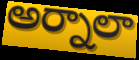
అర్నాలా